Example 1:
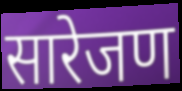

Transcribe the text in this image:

सारेजण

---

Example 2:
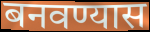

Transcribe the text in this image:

बनवण्यास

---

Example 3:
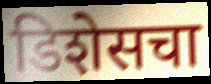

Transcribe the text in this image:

डिशेसचा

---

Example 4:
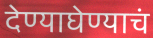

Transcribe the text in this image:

देण्याघेण्याचं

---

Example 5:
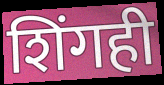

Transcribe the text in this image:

शिंगही